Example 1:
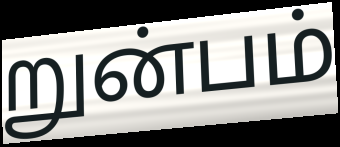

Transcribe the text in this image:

றுன்பம்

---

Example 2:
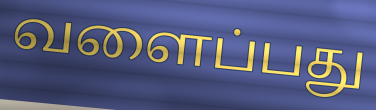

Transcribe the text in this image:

வளைப்பது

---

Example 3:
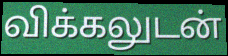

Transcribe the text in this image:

விக்கலுடன்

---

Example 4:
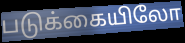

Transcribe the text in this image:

படுக்கையிலோ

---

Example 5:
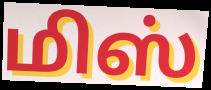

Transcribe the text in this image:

மிஸ்